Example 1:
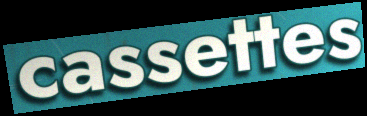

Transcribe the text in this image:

cassettes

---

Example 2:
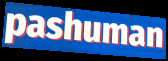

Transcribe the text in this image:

pashuman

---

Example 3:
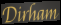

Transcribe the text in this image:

Dirham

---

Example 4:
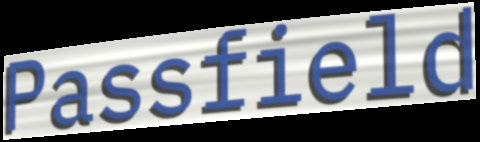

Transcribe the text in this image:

Passfield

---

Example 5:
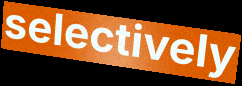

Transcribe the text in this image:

selectively